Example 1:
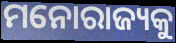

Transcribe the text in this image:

ମନୋରାଜ୍ୟକୁ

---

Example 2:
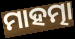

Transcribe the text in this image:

ମାହତ୍ମା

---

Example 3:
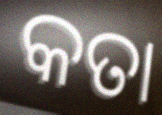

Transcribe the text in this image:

କତା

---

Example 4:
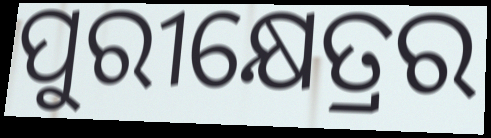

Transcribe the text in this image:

ପୁରୀକ୍ଷେତ୍ରର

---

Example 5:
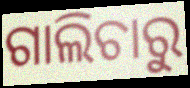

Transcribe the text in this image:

ଗାଲିଚାରୁ